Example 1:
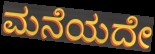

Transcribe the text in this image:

ಮನೆಯದೇ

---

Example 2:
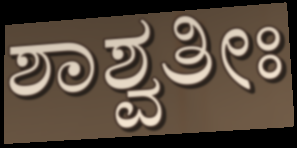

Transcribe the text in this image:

ಶಾಶ್ವತೀಃ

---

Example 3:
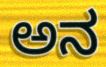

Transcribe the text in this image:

ಅನ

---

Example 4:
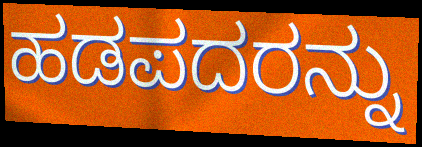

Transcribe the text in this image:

ಹಡಪದರನ್ನು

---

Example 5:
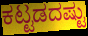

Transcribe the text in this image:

ಕಟ್ಟಡದಷ್ಟು